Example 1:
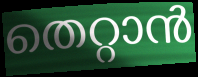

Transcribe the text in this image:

തെറ്റാൻ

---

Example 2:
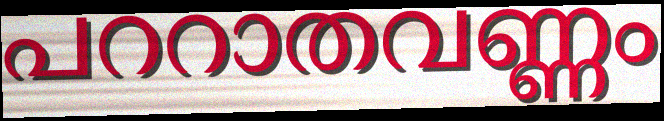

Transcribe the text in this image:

പററാതവണ്ണം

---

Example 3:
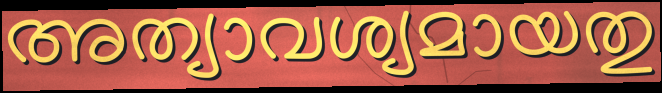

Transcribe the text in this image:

അത്യാവശ്യമായതു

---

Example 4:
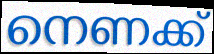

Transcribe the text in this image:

നെണക്ക്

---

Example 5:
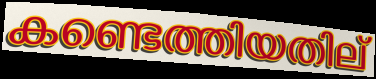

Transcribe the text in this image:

കണ്ടെത്തിയതില്